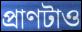
প্রাণটাও